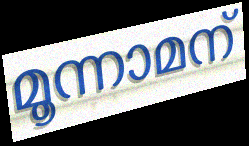
മൂന്നാമന്